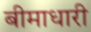
बीमाधारी